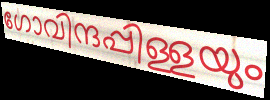
ഗോവിന്ദപ്പിള്ളയും